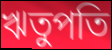
ঋতুপতি